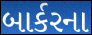
બાર્કરના